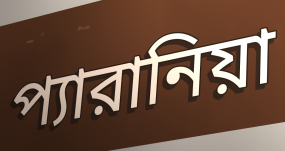
প্যারানিয়া